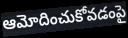
ఆమోదించుకోవడంపై